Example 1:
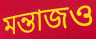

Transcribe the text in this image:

মন্তাজও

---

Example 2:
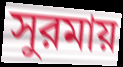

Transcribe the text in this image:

সুরমায়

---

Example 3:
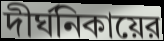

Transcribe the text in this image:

দীর্ঘনিকায়ের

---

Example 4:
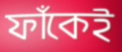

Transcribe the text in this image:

ফাঁকেই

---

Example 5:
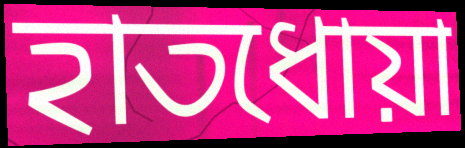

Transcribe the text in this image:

হাতধোয়া